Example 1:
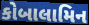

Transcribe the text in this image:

કોબાલામિન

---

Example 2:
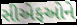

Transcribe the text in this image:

સીએફઓને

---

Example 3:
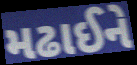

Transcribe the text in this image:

મઢાઈને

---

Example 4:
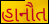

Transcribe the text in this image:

હાનૌત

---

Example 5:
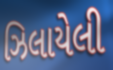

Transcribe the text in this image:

ઝિલાયેલી